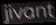
jivant